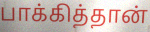
பாக்கித்தான்